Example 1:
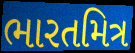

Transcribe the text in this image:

ભારતમિત્ર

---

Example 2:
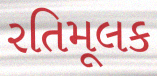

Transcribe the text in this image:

રતિમૂલક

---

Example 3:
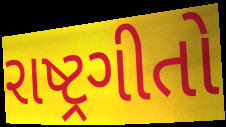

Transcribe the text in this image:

રાષ્ટ્રગીતો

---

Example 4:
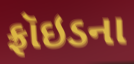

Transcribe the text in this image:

ફ્રૉઇડના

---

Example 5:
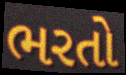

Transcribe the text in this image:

ભરતો